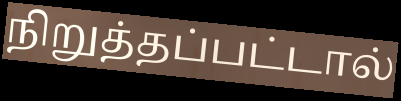
நிறுத்தப்பட்டால்